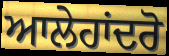
ਆਲੇਹਾਂਦਰੋ